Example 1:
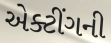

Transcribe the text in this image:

એક્ટીંગની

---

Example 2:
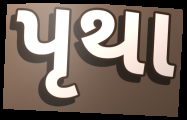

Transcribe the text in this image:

પૃથા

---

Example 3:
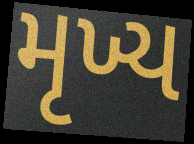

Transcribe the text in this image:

મૃખ્ય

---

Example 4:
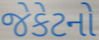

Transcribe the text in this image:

જેકેટનો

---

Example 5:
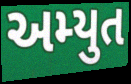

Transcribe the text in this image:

અમ્યુત